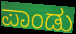
ಪಾಂಡು